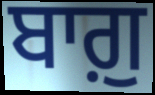
ਬਾਗ਼ੁ